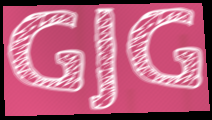
GJG